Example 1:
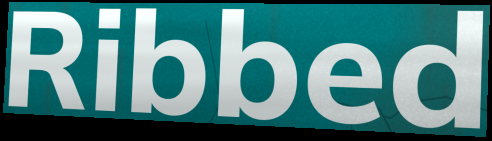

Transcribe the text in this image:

Ribbed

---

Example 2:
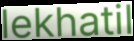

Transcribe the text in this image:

lekhatil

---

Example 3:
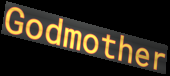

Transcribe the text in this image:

Godmother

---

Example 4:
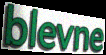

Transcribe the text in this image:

blevne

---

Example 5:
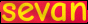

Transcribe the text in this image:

sevan